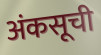
अंकसूची